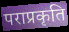
पराप्रकृति